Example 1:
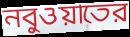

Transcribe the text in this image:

নবুওয়াতের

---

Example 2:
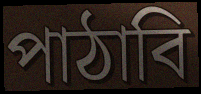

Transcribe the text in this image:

পাঠাবি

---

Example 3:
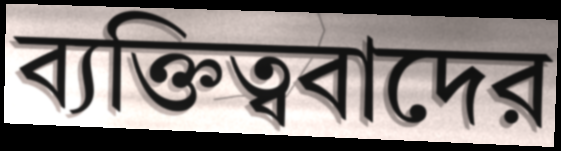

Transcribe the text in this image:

ব্যক্তিত্ববাদের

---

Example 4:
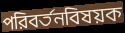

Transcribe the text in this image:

পরিবর্তনবিষয়ক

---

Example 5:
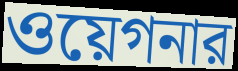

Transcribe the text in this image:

ওয়েগনার